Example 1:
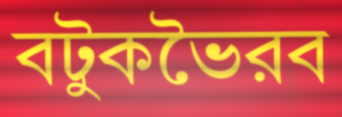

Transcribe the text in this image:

বটুকভৈরব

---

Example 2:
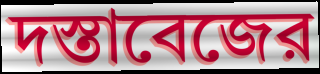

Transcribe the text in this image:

দস্তাবেজের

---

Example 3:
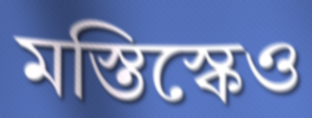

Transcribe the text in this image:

মস্তিস্কেও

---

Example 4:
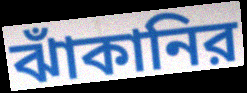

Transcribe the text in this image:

ঝাঁকানির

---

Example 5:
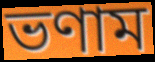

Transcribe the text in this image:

ভণাম